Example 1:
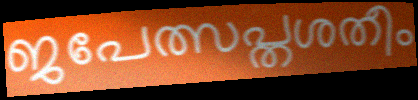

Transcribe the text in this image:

ജപേത്സപ്തശതീം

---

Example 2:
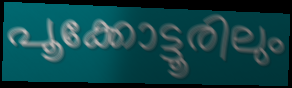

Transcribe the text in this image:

പൂക്കോട്ടൂരിലും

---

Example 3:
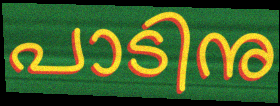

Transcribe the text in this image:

പാടിനു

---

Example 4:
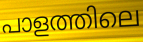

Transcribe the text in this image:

പാളത്തിലെ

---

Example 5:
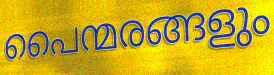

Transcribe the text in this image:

പൈന്മരങ്ങളും